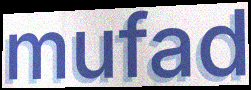
mufad